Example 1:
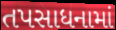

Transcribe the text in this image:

તપસાધનામાં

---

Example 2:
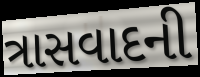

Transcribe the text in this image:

ત્રાસવાદની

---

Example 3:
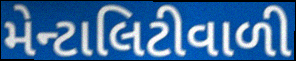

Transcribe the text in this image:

મેન્ટાલિટીવાળી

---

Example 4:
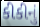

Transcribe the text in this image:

કીકીનું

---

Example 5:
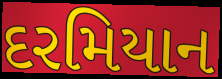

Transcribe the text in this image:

દરમિયાન